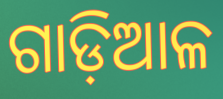
ଗାଡ଼ିଆଳ